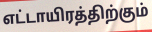
எட்டாயிரத்திற்கும்